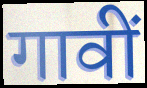
गावीं